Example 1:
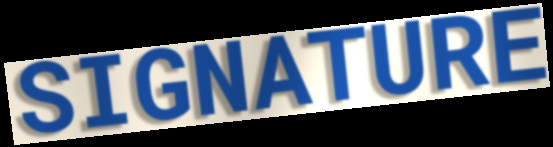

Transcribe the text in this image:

SIGNATURE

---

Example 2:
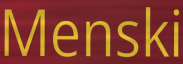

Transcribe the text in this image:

Menski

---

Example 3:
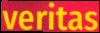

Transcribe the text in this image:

veritas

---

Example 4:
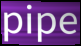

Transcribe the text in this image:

pipe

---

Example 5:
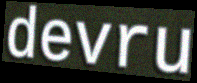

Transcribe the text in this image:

devru